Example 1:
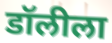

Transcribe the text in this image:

डॉलीला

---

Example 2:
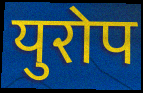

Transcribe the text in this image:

युरोप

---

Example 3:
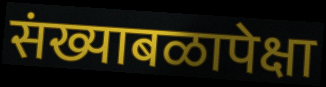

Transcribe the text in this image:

संख्याबळापेक्षा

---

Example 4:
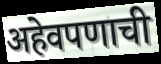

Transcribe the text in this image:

अहेवपणाची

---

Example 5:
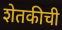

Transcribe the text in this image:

शेतकीची